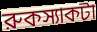
রুকস্যাকটা